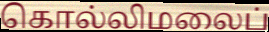
கொல்லிமலைப்